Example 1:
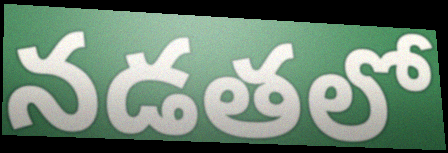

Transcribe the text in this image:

నడతలో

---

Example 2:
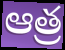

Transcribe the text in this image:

ఆత్ర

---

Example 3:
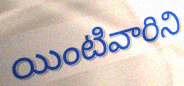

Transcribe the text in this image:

యింటివారిని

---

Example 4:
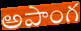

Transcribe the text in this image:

అపాంగ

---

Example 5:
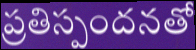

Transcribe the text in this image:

ప్రతిస్పందనతో